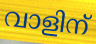
വാളിന്